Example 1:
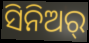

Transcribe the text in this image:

ସିନିଅର୍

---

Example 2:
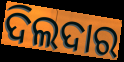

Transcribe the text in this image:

ଦିଲଦାର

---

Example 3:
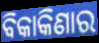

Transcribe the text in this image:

ବିକାକିଣାର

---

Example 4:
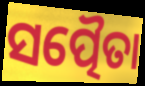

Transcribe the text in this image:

ସତ୍ପୈତା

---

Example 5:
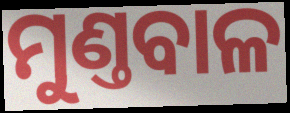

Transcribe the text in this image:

ମୁଣ୍ତବାଳ